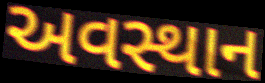
અવસ્થાન